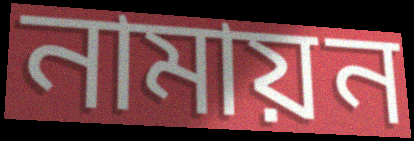
নামায়ন